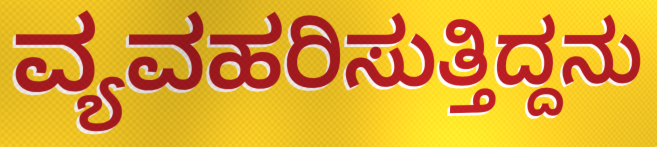
ವ್ಯವಹರಿಸುತ್ತಿದ್ದನು